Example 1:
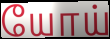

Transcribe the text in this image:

யோய்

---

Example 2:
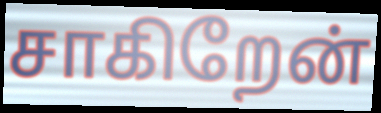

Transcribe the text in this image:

சாகிறேன்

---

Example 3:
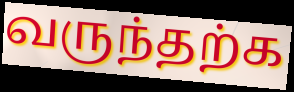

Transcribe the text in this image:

வருந்தற்க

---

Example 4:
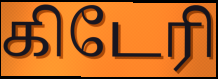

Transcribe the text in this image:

கிடேரி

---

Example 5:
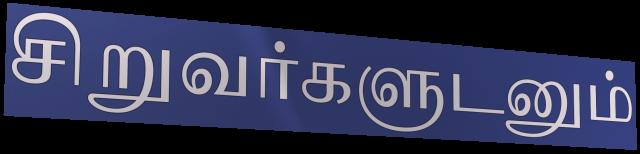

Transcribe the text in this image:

சிறுவர்களுடனும்